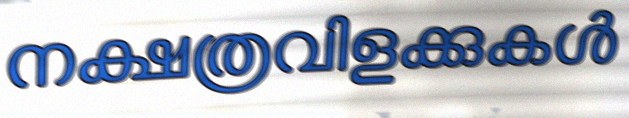
നക്ഷത്രവിളക്കുകൾ